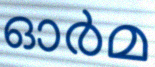
ഓർമ